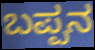
ಬಪ್ಪನ